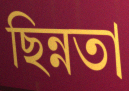
ছিন্নতা